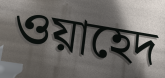
ওয়াহেদ